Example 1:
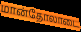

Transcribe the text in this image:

மான்தோலாடை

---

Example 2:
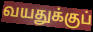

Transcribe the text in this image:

வயதுக்குப்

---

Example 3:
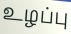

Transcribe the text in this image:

உழப்பு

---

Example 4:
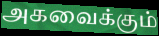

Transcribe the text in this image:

அகவைக்கும்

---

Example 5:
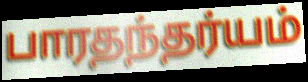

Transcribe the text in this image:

பாரதந்தர்யம்